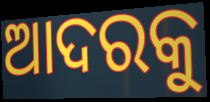
ଆଦରକୁ